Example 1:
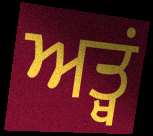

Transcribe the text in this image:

ਅਤ੍ਥਂ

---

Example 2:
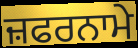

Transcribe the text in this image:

ਜ਼ਫਰਨਾਮੇ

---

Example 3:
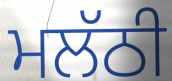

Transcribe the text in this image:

ਮਲੱਠੀ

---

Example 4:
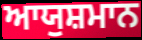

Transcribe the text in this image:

ਆਯੁਸ਼ਮਾਨ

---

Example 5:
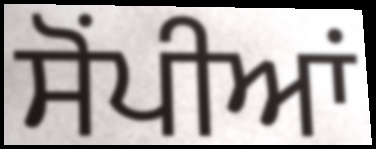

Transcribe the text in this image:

ਸੋਂਪੀਆਂ